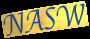
NASW